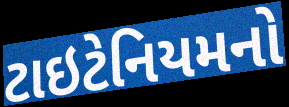
ટાઇટેનિયમનો